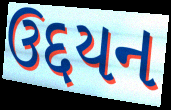
ઉદ્દયન